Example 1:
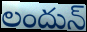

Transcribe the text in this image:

లందున్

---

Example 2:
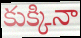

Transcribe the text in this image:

కుక్కినా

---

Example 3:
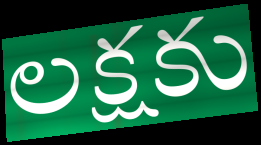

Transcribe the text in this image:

లక్షకు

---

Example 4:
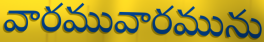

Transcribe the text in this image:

వారమువారమును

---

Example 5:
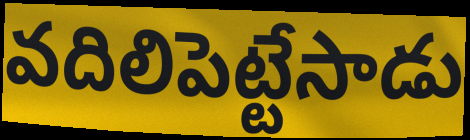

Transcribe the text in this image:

వదిలిపెట్టేసాడు